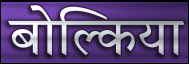
बोल्किया